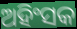
ଅହିଂସକ